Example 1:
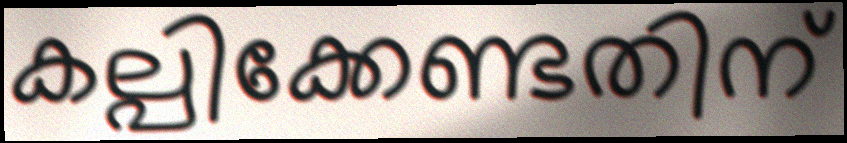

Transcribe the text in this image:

കല്പിക്കേണ്ടതിന്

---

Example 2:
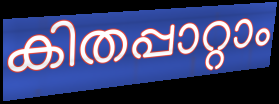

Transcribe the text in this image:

കിതപ്പാറ്റാം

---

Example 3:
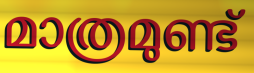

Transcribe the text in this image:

മാത്രമുണ്ട്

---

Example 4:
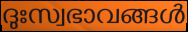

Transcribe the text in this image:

ദുഃസ്വഭാവങ്ങൾ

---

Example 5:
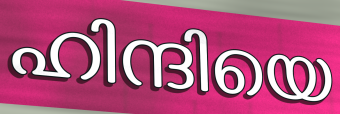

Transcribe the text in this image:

ഹിന്ദിയെ